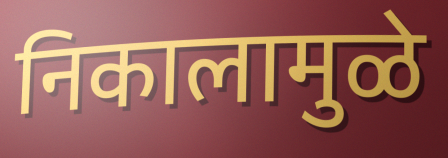
निकालामुळे